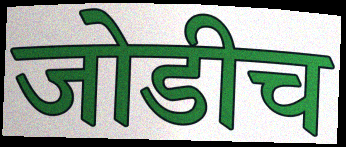
जोडीच